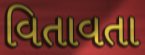
વિતાવતા